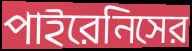
পাইরেনিসের